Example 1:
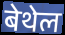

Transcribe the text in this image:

बेथेल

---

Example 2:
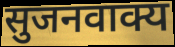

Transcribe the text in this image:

सुजनवाक्य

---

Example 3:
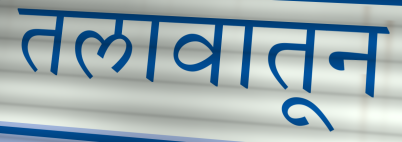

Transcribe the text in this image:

तलावातून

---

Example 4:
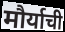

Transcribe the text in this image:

मौर्याची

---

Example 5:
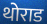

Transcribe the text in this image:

थोराड